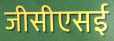
जीसीएसई